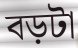
বড়টা